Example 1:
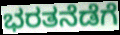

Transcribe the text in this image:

ಭರತನೆಡೆಗೆ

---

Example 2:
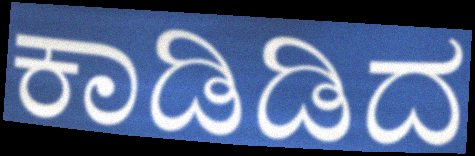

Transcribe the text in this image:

ಕಾಡಿಡಿದ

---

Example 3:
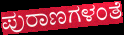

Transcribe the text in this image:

ಪುರಾಣಗಳಂತೆ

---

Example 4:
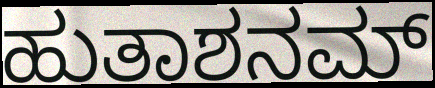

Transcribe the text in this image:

ಹುತಾಶನಮ್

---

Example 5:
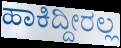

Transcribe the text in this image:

ಹಾಕಿದ್ದೀರಲ್ಲ